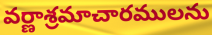
వర్ణాశ్రమాచారములను